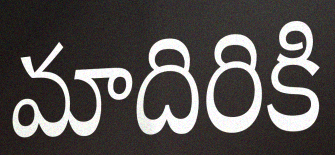
మాదిరికి